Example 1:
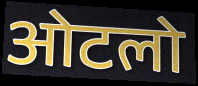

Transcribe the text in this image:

ओटलो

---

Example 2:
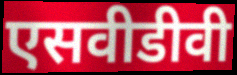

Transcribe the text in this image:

एसवीडीवी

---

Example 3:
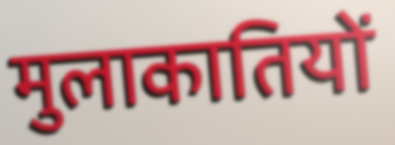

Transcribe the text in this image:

मुलाकातियों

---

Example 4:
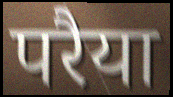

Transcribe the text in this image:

परैया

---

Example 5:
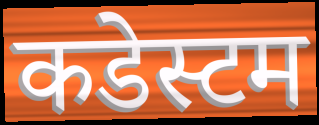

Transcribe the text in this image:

कडेस्टम